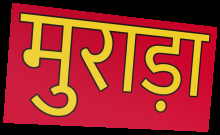
मुराड़ा